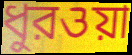
ধুরওয়া